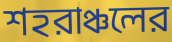
শহরাঞ্চলের